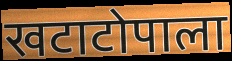
खटाटोपाला